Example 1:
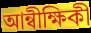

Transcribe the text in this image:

আন্বীক্ষিকী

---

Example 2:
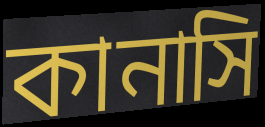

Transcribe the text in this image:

কানাসি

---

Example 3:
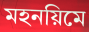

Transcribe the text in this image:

মহনয়িমে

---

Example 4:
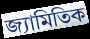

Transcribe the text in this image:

জ্যামিতিক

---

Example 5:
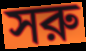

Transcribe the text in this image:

সরু